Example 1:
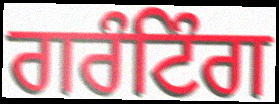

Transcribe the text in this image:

ਗਰੰਟਿੰਗ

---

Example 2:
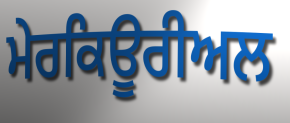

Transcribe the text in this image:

ਮੇਰਕਿਊਰੀਅਲ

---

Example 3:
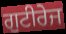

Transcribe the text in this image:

ਗੁਟੀਰੇਜ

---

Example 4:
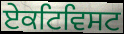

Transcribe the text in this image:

ਏਕਟਿਵਿਸਟ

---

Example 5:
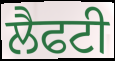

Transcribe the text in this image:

ਲੈਫਟੀ